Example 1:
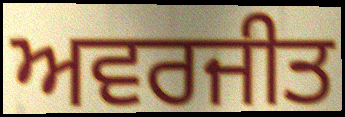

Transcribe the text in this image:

ਅਵਰਜੀਤ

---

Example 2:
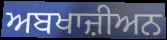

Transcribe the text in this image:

ਅਬਖਾਜ਼ੀਅਨ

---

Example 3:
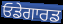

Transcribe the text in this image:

ਓਡੇਗਾਰਡ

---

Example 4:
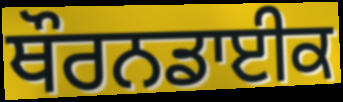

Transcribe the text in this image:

ਥੌਰਨਡਾਈਕ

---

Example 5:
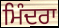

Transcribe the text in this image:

ਮਿੰਦਰਾ